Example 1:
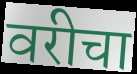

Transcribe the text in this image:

वरीचा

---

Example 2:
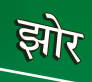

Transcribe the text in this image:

झोर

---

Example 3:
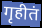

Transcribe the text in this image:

गृहीतं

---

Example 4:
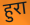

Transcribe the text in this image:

हुरा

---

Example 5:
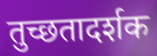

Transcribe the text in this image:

तुच्छतादर्शक